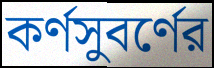
কর্ণসুবর্ণের